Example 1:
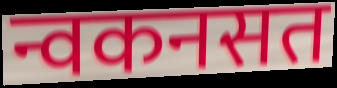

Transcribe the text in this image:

न्वकनसत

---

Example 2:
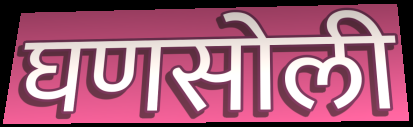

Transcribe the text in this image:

घणसोली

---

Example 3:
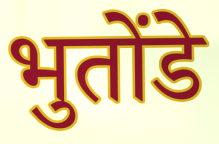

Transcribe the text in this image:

भुतोंडे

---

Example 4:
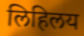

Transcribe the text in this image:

लिहिलय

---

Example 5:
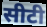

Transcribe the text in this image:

सीटी